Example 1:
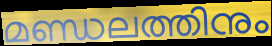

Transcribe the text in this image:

മണ്ഡലത്തിനും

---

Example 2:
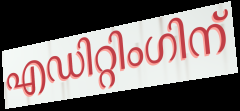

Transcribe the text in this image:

എഡിറ്റിംഗിന്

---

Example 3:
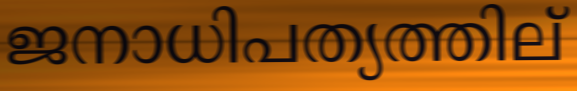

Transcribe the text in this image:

ജനാധിപത്യത്തില്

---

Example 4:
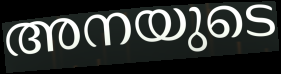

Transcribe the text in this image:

അനയുടെ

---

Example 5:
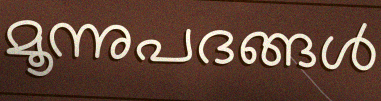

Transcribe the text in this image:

മൂന്നുപദങ്ങൾ